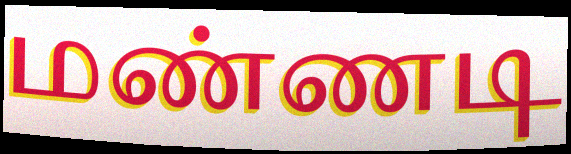
மண்ணடி